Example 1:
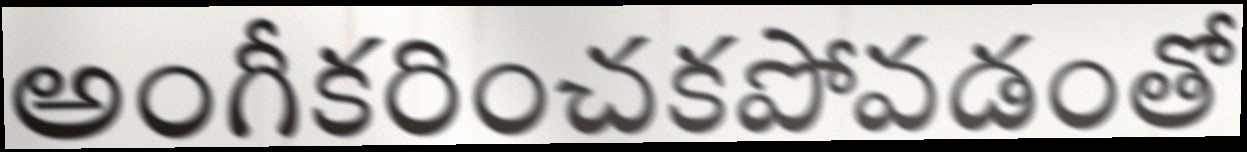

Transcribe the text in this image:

అంగీకరించకపోవడంతో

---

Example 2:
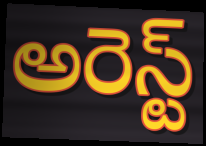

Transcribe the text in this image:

అరెస్ట్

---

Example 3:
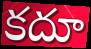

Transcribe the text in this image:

కదూ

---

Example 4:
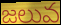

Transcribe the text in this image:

జలువ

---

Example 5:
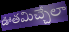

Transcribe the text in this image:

ఊతమిచ్చేలా